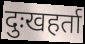
दुःखहर्ता